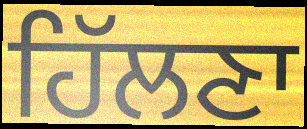
ਹਿੱਲਣਾ